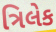
ત્રિલેક